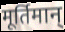
मूर्तिमान्